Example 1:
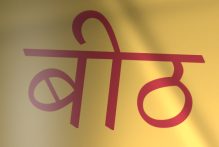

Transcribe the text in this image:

बीठ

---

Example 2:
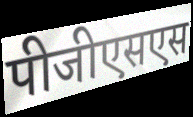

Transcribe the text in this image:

पीजीएसएस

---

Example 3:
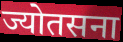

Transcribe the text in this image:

ज्योतसना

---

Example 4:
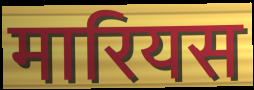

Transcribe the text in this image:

मारियस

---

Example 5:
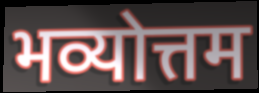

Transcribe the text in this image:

भव्योत्तम